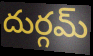
దుర్గమ్